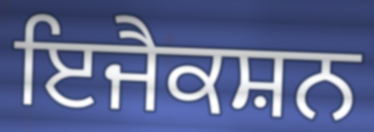
ਇਜੈਕਸ਼ਨ